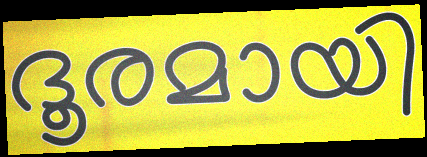
ദൂരമായി